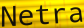
Netra